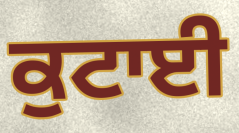
ਕੁਟਾਈ